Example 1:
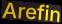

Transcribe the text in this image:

Arefin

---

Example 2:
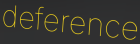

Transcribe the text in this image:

deference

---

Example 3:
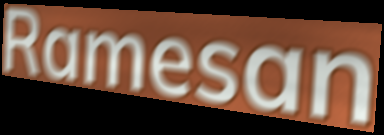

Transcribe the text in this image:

Ramesan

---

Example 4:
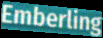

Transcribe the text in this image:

Emberling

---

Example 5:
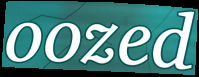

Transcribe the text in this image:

oozed